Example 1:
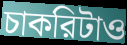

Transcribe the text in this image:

চাকরিটাও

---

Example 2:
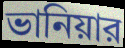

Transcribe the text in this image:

ভানিয়ার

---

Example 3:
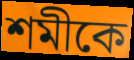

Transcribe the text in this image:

শমীকে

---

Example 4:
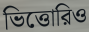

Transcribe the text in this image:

ভিত্তোরিও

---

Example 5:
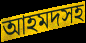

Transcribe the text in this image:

আহমদসহ